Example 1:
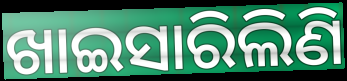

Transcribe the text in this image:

ଖାଇସାରିଲିଣି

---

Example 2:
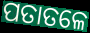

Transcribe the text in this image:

ପତାତଳେ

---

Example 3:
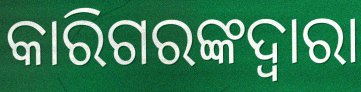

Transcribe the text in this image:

କାରିଗରଙ୍କଦ୍ୱାରା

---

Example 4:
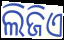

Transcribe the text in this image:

ଲିଜିଏ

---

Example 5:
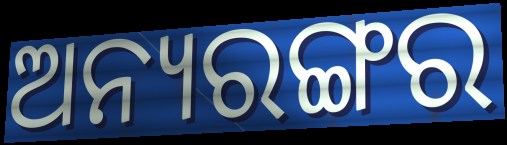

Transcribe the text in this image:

ଅନ୍ୟରଙ୍ଗର